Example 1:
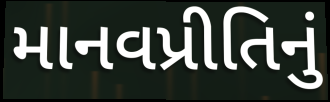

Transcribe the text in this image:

માનવપ્રીતિનું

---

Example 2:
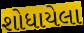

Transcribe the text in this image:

શોધાયેલા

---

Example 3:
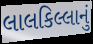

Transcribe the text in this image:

લાલકિલ્લાનું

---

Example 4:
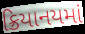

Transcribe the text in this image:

ક્રિયાનયમાં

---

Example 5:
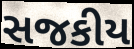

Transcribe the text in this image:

સજકીય